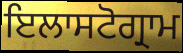
ਇਲਾਸਟੋਗ੍ਰਾਮ